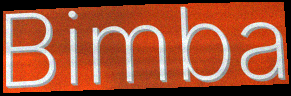
Bimba